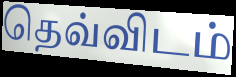
தெவ்விடம்